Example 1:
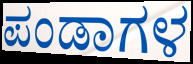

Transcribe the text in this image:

ಪಂಡಾಗಳ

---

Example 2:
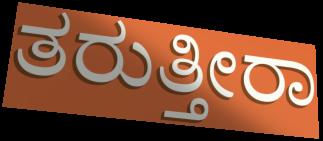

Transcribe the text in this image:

ತರುತ್ತೀರಾ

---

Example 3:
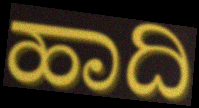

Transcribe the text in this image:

ಹಾದಿ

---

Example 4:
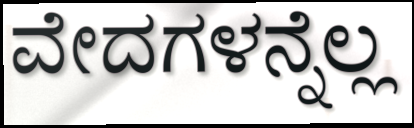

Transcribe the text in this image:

ವೇದಗಳನ್ನೆಲ್ಲ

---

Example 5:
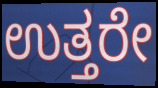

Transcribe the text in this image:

ಉತ್ತರೇ